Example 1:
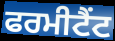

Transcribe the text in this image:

ਫਰਮੀਟੈਂਟ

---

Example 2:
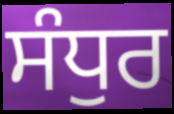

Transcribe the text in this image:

ਸੰਧੁਰ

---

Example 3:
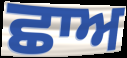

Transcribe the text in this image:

ਛਾਅ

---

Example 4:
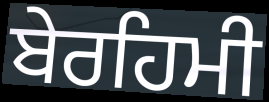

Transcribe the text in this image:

ਬੇਰਹਿਮੀ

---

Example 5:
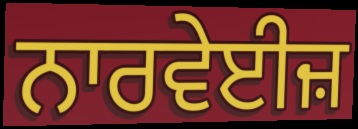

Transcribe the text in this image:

ਨਾਰਵੇਈਜ਼